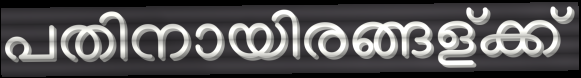
പതിനായിരങ്ങള്ക്ക്